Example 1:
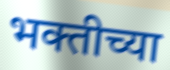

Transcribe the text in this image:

भक्‍तीच्या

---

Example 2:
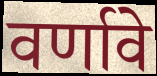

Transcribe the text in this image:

वर्णावे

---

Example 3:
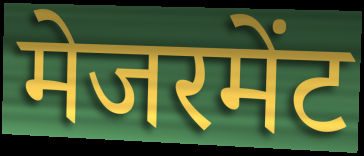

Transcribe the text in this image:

मेजरमेंट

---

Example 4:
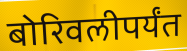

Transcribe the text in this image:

बोरिवलीपर्यंत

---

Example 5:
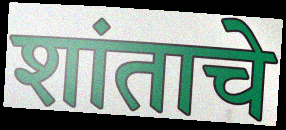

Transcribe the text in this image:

शांताचे